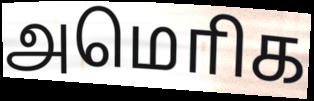
அமெரிக